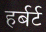
हर्बर्ट